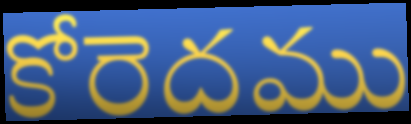
కోరెదము